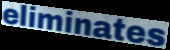
eliminates